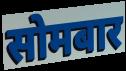
सोमबार